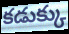
కడుక్కు